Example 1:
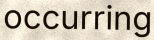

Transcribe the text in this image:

occurring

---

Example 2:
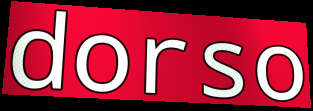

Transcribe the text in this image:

dorso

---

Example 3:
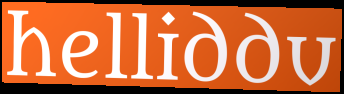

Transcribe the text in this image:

helliddu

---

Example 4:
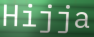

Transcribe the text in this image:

Hijja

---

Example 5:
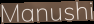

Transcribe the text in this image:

Manushi